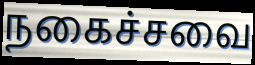
நகைச்சவை